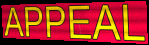
APPEAL